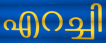
എറച്ചി